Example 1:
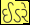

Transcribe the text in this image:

ઈડરે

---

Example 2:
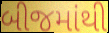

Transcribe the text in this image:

બીજમાંથી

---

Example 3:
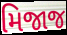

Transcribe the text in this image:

મિજાજ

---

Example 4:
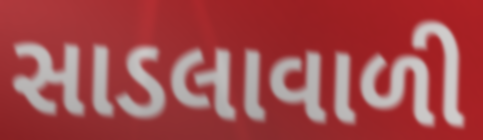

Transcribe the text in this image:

સાડલાવાળી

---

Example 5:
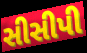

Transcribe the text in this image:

સીસીપી